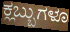
ಕ್ಲಬ್ಬುಗಳೂ